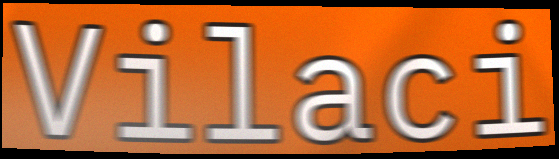
Vilaci